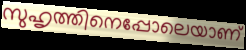
സുഹൃത്തിനെപ്പോലെയാണ്